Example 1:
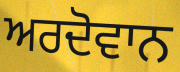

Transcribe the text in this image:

ਅਰਦੋਵਾਨ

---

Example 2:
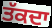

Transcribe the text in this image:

ਤੱਕਦਾ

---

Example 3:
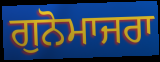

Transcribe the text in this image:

ਗੁਨੋਮਾਜਰਾ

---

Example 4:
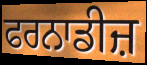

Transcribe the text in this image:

ਫਰਨਾਡੀਜ਼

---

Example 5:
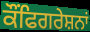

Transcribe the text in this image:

ਕੌਂਫਿਗਰੇਸ਼ਨਾਂ